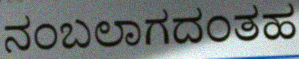
ನಂಬಲಾಗದಂತಹ